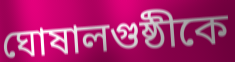
ঘোষালগুষ্ঠীকে